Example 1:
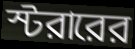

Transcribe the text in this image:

স্টরারের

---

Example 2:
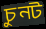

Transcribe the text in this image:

চুনট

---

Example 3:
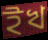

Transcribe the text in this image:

ইখ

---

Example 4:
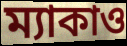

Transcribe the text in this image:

ম্যাকাও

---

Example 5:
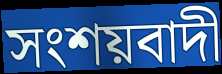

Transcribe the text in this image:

সংশয়বাদী